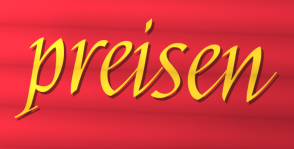
preisen